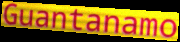
Guantanamo